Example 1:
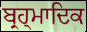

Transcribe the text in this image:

ਬ੍ਰਹ੍ਮਾਦਿਕ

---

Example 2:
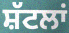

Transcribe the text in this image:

ਸ਼ੱਟਲਾਂ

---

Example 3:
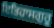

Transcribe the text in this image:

ਇਤਿਹਾਸਗੁਰੂ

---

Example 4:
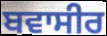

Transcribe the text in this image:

ਬਵਾਸੀਰ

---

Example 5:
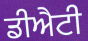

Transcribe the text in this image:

ਡੀਐਟੀ